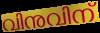
വിനുവിന്